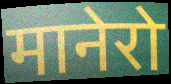
मानेरो